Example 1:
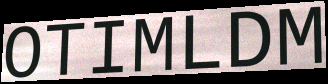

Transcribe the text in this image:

OTIMLDM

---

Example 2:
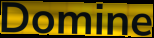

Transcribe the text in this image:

Domine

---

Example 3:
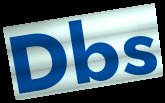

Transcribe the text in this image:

Dbs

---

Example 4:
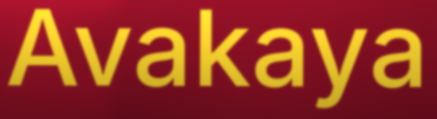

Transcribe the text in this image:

Avakaya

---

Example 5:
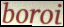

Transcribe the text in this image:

boroi